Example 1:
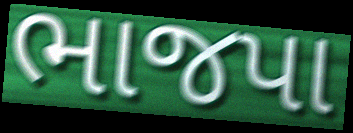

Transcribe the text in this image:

ભાજપા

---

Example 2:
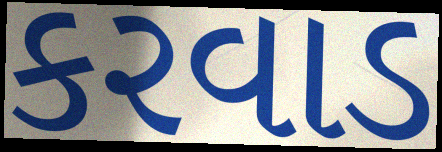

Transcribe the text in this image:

કરવાડ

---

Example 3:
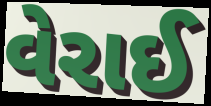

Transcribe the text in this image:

વેરાઈ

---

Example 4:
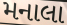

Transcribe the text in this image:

મનાલા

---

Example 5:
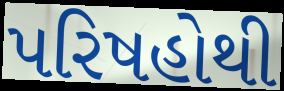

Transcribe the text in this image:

પરિષહોથી